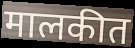
मालकीत